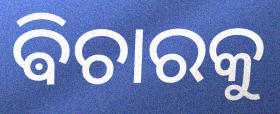
ଵିଚାରକୁ